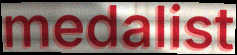
medalist